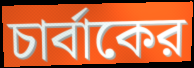
চার্বাকের